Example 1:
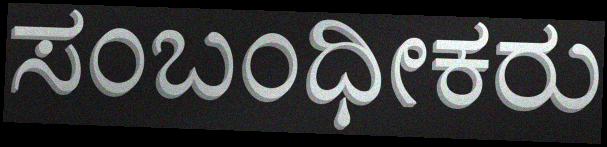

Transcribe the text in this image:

ಸಂಬಂಧೀಕರು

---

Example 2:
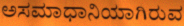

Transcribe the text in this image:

ಅಸಮಾಧಾನಿಯಾಗಿರುವ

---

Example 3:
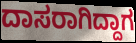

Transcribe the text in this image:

ದಾಸರಾಗಿದ್ದಾಗ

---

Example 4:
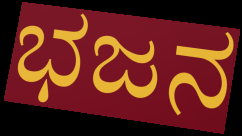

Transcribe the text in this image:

ಭಜನ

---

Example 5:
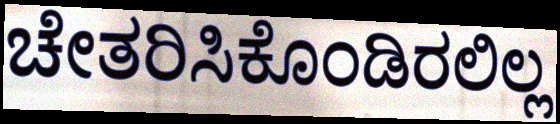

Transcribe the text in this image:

ಚೇತರಿಸಿಕೊಂಡಿರಲಿಲ್ಲ